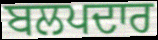
ਬਲਪਦਾਰ